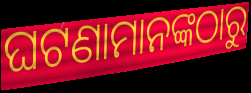
ଘଟଣାମାନଙ୍କଠାରୁ